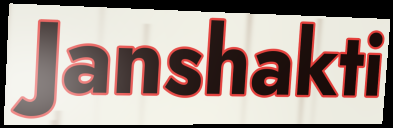
Janshakti